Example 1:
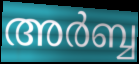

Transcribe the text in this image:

അർബ്ബ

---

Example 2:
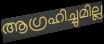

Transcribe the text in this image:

ആഗ്രഹിച്ചുമില്ല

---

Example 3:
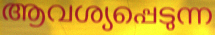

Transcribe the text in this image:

ആവശ്യപ്പെടുന്ന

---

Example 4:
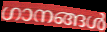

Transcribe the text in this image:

ഗാനങ്ങൾ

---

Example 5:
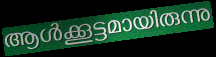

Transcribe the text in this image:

ആൾക്കൂട്ടമായിരുന്നു